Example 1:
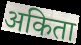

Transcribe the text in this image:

अकिता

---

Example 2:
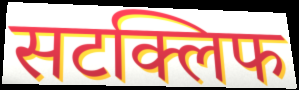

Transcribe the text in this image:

सटक्लिफ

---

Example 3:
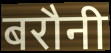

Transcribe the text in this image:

बरौनी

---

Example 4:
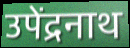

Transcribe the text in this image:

उपेंद्रनाथ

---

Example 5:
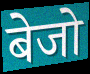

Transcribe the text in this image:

बेजो